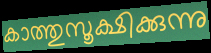
കാത്തുസൂക്ഷിക്കുന്നു